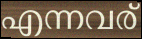
എന്നവര്